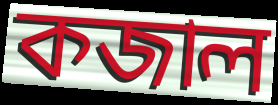
কজাল